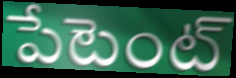
పేటెంట్